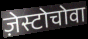
ज़ेस्टोचोवा